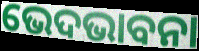
ଭେଦଭାବନା